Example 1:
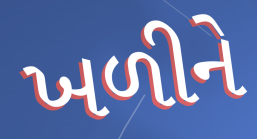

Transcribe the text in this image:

ખળીને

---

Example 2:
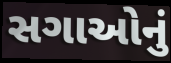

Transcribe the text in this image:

સગાઓનું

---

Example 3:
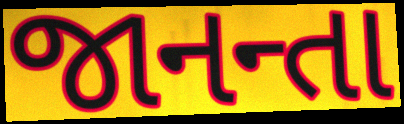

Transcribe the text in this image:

જાનન્તા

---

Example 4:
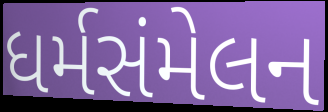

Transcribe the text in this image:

ધર્મસંમેલન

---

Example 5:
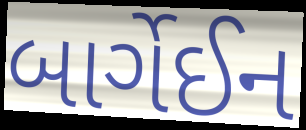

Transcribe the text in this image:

બાર્ગેઈન